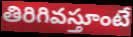
తిరిగివస్తూంటే